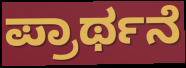
ಪ್ರಾರ್ಥನೆ